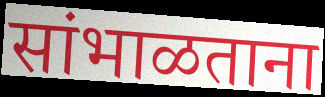
सांभाळताना